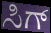
ಸಿಗ್